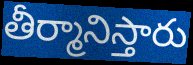
తీర్మానిస్తారు